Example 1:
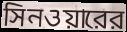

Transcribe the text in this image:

সিনওয়ারের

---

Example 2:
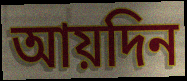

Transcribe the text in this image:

আয়দিন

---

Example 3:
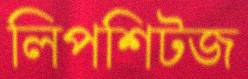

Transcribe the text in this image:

লিপশিটজ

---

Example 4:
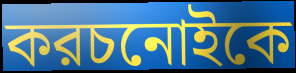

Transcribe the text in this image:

করচনোইকে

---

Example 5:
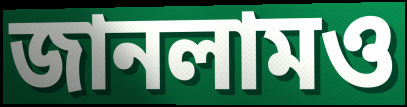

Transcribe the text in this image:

জানলামও